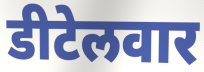
डीटेलवार